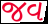
જવ